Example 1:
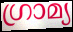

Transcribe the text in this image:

ഗ്രാമ്യ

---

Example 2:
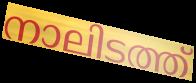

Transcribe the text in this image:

നാലിടത്ത്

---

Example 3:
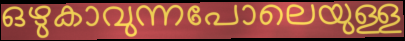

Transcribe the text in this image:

ഒഴുകാവുന്നപോലെയുള്ള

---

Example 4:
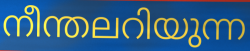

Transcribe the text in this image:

നീന്തലറിയുന്ന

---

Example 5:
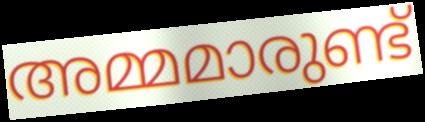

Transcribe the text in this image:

അമ്മമാരുണ്ട്